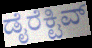
ಡೈರೆಕ್ಟಿವ್